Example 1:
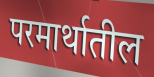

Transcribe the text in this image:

परमार्थातील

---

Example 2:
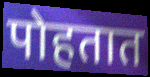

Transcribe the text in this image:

पोहतात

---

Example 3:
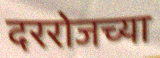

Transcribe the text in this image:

दररोजच्या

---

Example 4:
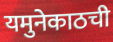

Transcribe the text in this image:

यमुनेकाठची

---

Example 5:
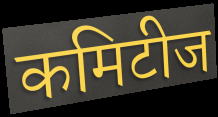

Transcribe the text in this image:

कमिटीज